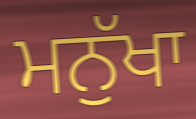
ਮਨੁੱਖਾ